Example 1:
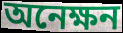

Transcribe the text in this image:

অনেক্ষন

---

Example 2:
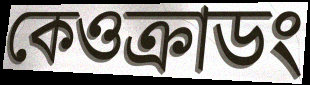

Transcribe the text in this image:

কেওক্রাডং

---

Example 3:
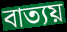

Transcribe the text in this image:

বাত্যয়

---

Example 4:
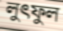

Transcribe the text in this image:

লুৎফুল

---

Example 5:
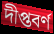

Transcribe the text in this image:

দীপ্তবর্ণ